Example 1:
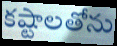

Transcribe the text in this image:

కష్టాలతోను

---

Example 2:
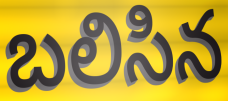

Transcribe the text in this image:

బలిసిన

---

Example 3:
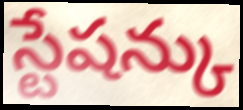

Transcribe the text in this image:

స్టేషన్కు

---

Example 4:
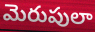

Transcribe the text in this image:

మెరుపులా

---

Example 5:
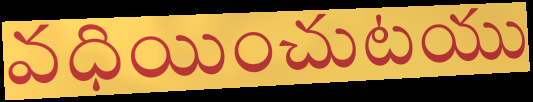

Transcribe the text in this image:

వధియించుటయు